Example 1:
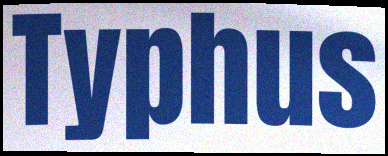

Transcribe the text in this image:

Typhus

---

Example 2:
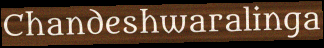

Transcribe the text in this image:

Chandeshwaralinga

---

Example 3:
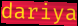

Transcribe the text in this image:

dariya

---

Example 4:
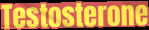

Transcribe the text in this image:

Testosterone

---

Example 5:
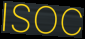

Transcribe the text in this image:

ISOC